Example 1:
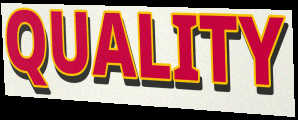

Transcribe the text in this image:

QUALITY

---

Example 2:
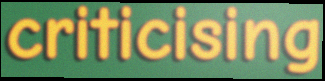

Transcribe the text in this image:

criticising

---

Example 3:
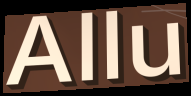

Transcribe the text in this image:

Allu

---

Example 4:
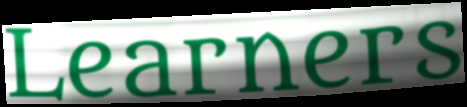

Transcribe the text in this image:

Learners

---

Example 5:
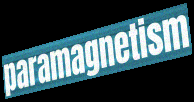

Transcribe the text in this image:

paramagnetism